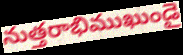
నుత్తరాభిముఖుండై